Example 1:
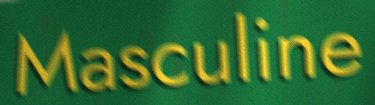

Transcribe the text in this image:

Masculine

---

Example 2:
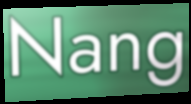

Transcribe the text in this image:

Nang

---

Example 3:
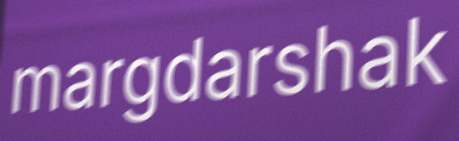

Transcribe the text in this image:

margdarshak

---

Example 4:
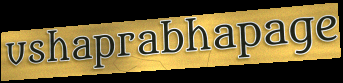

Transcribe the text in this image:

ushaprabhapage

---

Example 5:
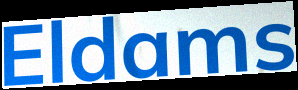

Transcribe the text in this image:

Eldams